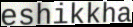
eshikkha